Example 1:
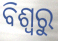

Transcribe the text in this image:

ବିଶ୍ଵରୁ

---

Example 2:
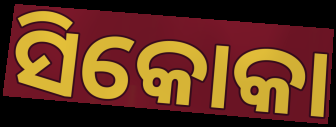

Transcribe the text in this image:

ସିକୋକା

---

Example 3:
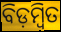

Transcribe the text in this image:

ବିଡ଼ମ୍ଵିତ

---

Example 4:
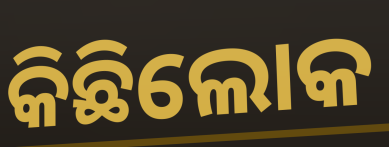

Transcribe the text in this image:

କିଛିଲୋକ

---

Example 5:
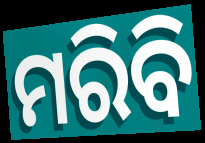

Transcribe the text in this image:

ମରିବି